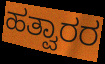
ಹತ್ವಾರರ